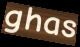
ghas